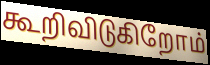
கூறிவிடுகிறோம்